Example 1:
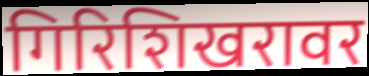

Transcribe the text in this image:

गिरिशिखरावर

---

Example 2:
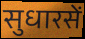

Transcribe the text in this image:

सुधारसें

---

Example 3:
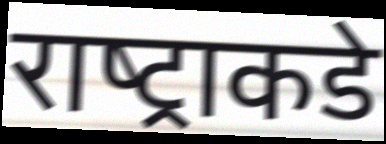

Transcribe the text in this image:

राष्ट्राकडे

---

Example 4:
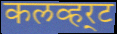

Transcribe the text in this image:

कलव्हर्ट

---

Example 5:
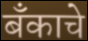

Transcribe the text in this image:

बँकाचे